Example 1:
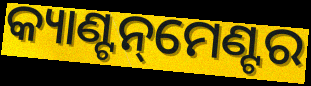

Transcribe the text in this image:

କ୍ୟାଣ୍ଟନ୍‌ମେଣ୍ଟର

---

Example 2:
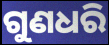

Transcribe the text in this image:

ଗୁଣଧରି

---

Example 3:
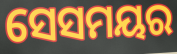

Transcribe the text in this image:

ସେସମୟର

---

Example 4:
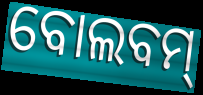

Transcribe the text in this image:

ବୋଲବମ୍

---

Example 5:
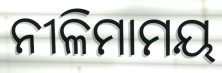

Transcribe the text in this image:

ନୀଳିମାମୟ